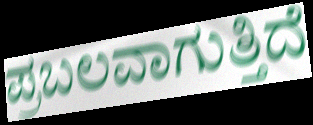
ಪ್ರಬಲವಾಗುತ್ತಿದೆ